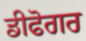
ਡੀਫੋਗਰ